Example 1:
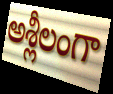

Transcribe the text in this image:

అశ్లీలంగా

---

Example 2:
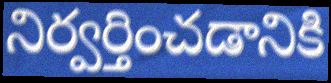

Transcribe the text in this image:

నిర్వర్తించడానికి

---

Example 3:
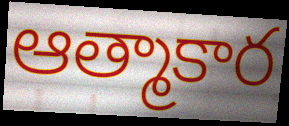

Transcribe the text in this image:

ఆత్మాకార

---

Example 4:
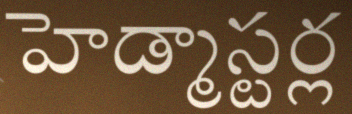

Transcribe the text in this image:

హెడ్మాస్టర్ల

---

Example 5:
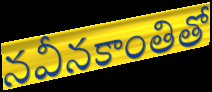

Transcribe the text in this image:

నవీనకాంతితో